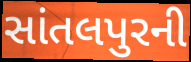
સાંતલપુરની